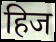
हिज